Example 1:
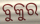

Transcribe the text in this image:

ବୁକୁର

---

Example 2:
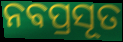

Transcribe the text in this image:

ନବପ୍ରସୂତ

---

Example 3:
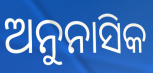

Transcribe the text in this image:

ଅନୁନାସିକ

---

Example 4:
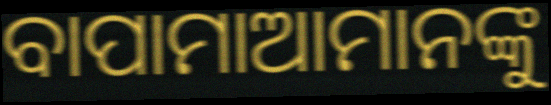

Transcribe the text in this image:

ବାପାମାଆମାନଙ୍କୁ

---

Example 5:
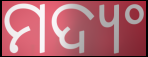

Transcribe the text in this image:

ମଦ୍ୟଂ